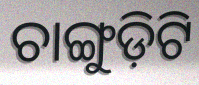
ଚାଙ୍ଗୁଡ଼ିଟି